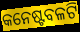
କନେଷ୍ଟବଳଟି